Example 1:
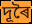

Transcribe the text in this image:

দূৰৈ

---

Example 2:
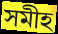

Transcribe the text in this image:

সমীহ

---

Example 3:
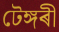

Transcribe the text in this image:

টেঙ্গৰী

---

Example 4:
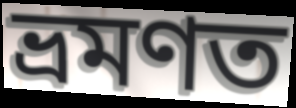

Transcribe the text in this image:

ভ্ৰমণত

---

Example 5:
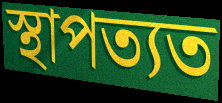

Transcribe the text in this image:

স্থাপত্যত